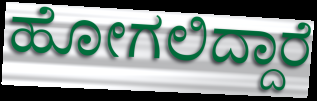
ಹೋಗಲಿದ್ದಾರೆ